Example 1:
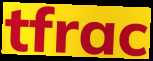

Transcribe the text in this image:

tfrac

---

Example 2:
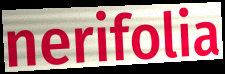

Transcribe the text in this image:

nerifolia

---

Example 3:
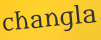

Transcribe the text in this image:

changla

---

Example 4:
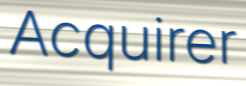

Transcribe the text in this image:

Acquirer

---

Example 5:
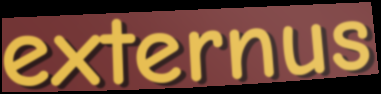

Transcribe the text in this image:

externus